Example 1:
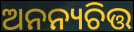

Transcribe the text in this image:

ଅନନ୍ୟଚିତ୍ତ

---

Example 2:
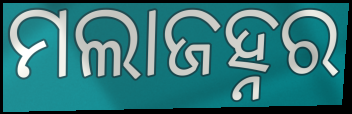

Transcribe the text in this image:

ମଲାଜହ୍ନର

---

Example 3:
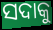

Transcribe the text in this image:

ସଦାକୁ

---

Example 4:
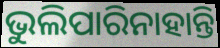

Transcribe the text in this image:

ଭୁଲିପାରିନାହାନ୍ତି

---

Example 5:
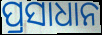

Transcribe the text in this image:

ପ୍ରସାଧାନ